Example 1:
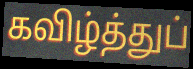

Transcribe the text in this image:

கவிழ்த்துப்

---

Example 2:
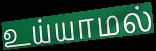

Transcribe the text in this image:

உய்யாமல்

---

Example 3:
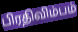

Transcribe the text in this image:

பிரதிவிம்பம்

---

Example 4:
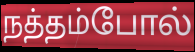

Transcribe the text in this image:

நத்தம்போல்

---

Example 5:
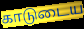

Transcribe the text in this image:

காடுடைய